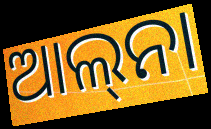
ଆଲ୍‍ନା